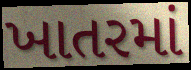
ખાતરમાં